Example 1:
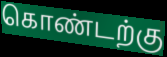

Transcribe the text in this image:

கொண்டற்கு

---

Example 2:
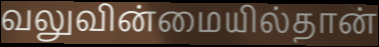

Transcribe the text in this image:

வலுவின்மையில்தான்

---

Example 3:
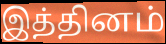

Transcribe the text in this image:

இத்தினம்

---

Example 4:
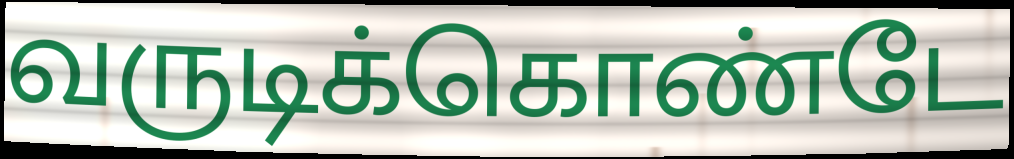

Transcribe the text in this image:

வருடிக்கொண்டே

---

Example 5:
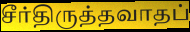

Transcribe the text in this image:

சீர்திருத்தவாதப்